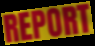
REPORT